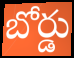
బోర్డు